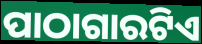
ପାଠାଗାରଟିଏ